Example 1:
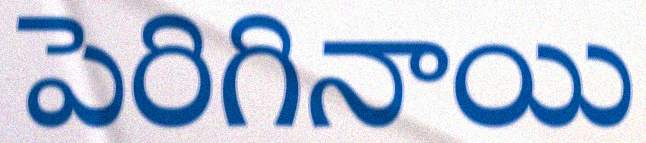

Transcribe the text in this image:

పెరిగినాయి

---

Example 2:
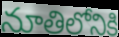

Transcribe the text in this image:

నూతిలోనికి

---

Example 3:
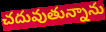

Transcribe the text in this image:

చదువుతున్నాను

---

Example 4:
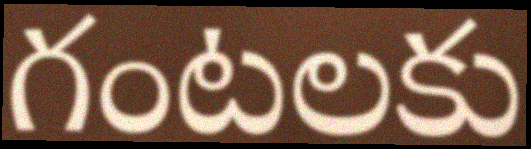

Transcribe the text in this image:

గంటలకు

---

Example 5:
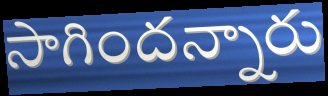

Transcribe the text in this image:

సాగిందన్నారు